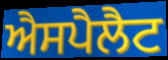
ਐਸਪੈਲੈਟ